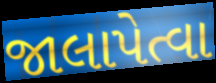
જાલાપેત્વા